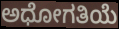
ಅಧೋಗತಿಯೆ